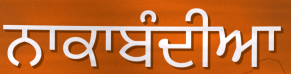
ਨਾਕਾਬੰਦੀਆ